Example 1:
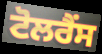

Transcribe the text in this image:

ਟੋਲਰੈਂਸ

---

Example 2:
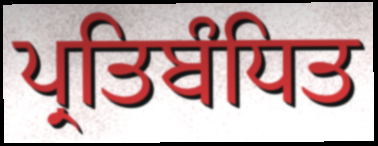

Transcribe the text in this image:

ਪ੍ਰਤਿਬੰਧਿਤ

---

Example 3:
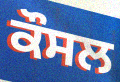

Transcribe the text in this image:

ਕੌਸਲ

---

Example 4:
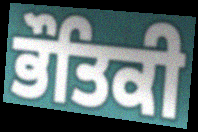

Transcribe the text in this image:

ਭੌਤਿਕੀ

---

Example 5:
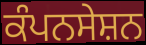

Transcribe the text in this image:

ਕੰਪਨਸੇਸ਼ਨ